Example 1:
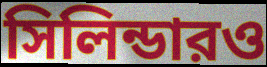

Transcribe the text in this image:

সিলিন্ডারও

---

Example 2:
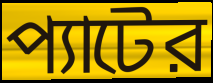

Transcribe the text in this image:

প্যাটের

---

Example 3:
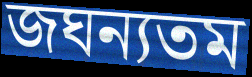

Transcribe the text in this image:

জঘন্যতম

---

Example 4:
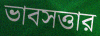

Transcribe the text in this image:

ভাবসত্তার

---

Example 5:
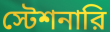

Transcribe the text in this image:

স্টেশনারি